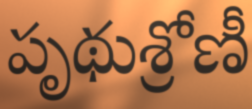
పృథుశ్రోణీ